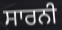
ਸਾਰਨੀ